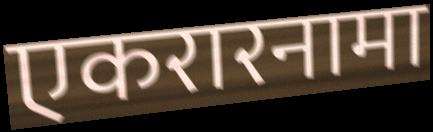
एकरारनामा